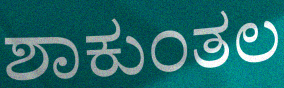
ಶಾಕುಂತಲ